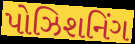
પોઝિશનિંગ